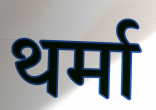
थर्मा